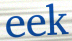
eek